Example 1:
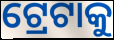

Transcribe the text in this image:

ଟ୍ରେଟାକୁ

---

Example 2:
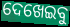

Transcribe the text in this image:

ଦେଖେଇବୁ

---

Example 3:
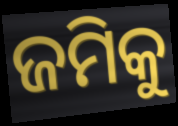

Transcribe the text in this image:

ଜମିକୁ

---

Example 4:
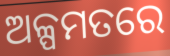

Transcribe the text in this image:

ଅଳ୍ପମତରେ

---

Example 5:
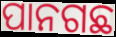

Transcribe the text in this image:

ପାନଗଛ